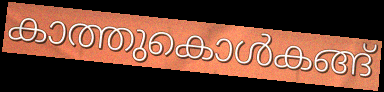
കാത്തുകൊൾകങ്ങ്